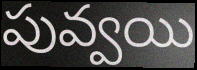
పువ్వయి